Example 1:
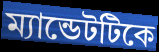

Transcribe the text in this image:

ম্যান্ডেটটিকে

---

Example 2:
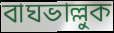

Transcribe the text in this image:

বাঘভাল্লুক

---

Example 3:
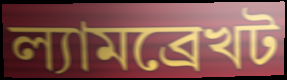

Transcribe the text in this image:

ল্যামব্রেখট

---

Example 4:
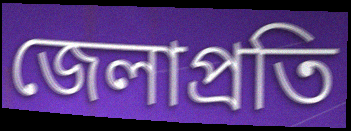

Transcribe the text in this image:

জেলাপ্রতি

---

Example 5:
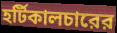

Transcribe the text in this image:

হর্টিকালচারের